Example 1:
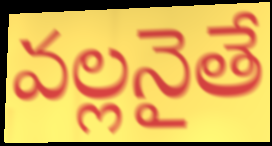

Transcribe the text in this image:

వల్లనైతే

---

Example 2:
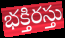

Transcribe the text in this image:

భక్తిరస్తు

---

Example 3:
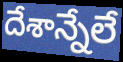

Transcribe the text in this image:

దేశాన్నేలే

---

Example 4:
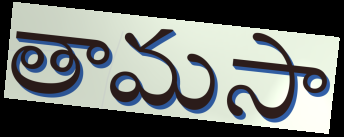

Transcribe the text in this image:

తామసా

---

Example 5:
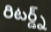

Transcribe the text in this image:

రిటర్డ్న్